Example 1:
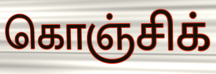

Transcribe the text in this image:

கொஞ்சிக்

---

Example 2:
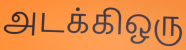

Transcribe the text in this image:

அடக்கிஒரு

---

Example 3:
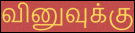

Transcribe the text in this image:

வினுவுக்கு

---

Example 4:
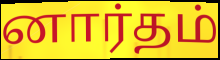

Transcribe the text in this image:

னார்தம்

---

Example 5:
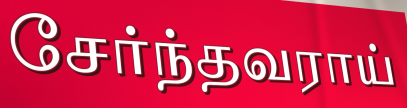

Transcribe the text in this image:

சேர்ந்தவராய்